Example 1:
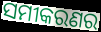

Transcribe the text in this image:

ସମୀକରଣର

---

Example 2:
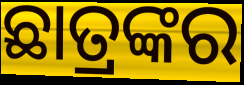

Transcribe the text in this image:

ଛାତ୍ରଙ୍କର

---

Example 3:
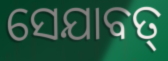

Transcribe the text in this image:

ସେଯାବତ୍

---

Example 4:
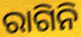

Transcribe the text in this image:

ରାଗିନି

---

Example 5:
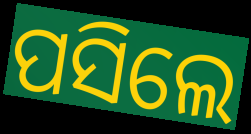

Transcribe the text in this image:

ପସିଲେ